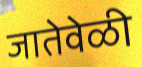
जातेवेळी